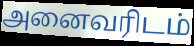
அனைவரிடம்